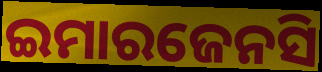
ଇମାରଜେନସି